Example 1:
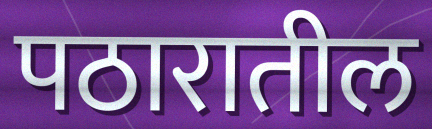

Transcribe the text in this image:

पठारातील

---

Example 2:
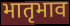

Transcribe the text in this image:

भातृभाव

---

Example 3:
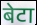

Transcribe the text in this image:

बेटा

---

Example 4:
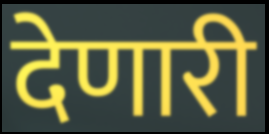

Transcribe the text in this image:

देणारी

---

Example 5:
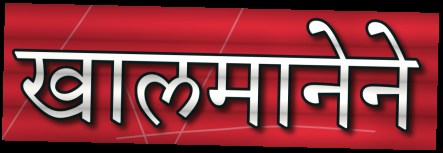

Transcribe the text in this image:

खालमानेने